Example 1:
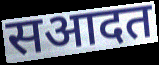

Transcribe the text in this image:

सआदत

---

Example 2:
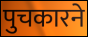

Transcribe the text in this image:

पुचकारने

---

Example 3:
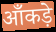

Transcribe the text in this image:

आँकड़े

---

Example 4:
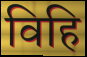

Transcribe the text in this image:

विहि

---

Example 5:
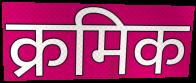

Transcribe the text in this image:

क्रमिक